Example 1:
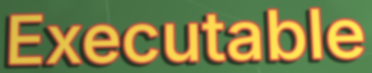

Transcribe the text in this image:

Executable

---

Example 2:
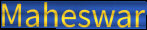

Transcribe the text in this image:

Maheswar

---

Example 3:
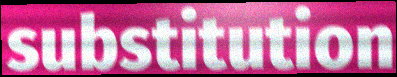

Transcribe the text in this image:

substitution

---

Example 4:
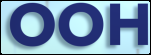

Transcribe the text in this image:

OOH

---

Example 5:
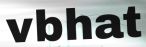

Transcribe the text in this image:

vbhat